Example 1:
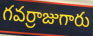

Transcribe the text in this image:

గవర్రాజుగారు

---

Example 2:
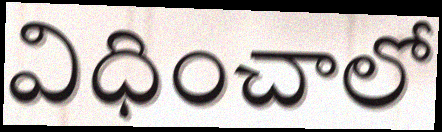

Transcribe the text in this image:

విధించాలో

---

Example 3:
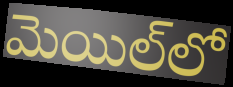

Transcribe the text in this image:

మెయిల్‌లో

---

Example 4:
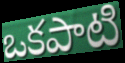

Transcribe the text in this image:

ఒకపాటి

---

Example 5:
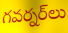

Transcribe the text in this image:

గవర్నర్‌లు